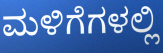
ಮಳಿಗೆಗಳಲ್ಲಿ